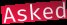
Asked